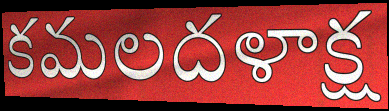
కమలదళాక్ష